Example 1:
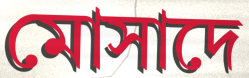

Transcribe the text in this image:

মোসাদে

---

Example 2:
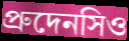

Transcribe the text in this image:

প্রুদেনসিও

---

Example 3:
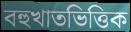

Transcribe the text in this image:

বহুখাতভিত্তিক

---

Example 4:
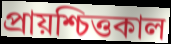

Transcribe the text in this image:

প্রায়শ্চিত্তকাল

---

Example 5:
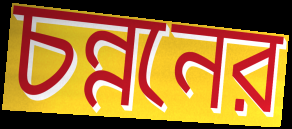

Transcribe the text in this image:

চন্ননের